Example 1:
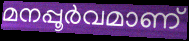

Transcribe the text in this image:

മനപ്പൂർവമാണ്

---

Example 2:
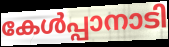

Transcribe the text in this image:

കേൾപ്പാനാടി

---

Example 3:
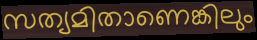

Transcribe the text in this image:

സത്യമിതാണെങ്കിലും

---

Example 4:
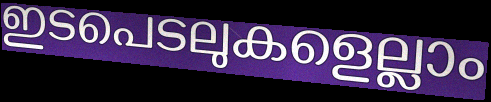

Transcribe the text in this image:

ഇടപെടലുകളെല്ലാം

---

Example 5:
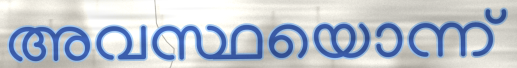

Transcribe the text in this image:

അവസ്ഥയൊന്ന്